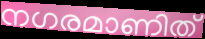
നഗരമാണിത്